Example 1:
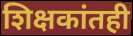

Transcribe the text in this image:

शिक्षकांतही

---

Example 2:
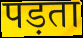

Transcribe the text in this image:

पड़ता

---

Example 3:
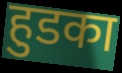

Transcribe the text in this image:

हुडका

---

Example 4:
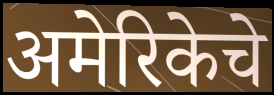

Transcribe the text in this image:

अमेरिकेचे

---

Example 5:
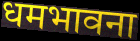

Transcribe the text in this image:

धमभावना